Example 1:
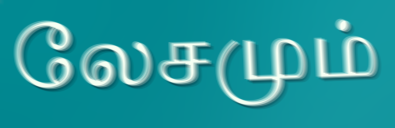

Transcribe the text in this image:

லேசமும்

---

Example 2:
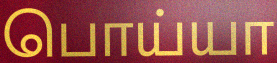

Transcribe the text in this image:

பொய்யா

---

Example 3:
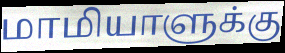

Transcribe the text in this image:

மாமியாளுக்கு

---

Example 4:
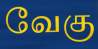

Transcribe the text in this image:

வேகு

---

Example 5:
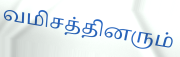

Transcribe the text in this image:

வமிசத்தினரும்